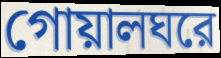
গোয়ালঘরে